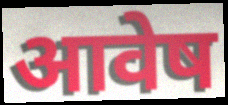
आवेष